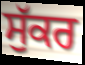
ਸੁੱਕਰ